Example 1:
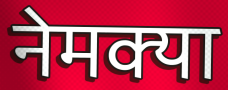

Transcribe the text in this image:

नेमक्या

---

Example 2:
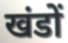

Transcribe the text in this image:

खंडों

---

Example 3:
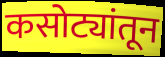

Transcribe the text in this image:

कसोट्यांतून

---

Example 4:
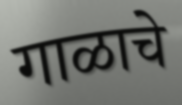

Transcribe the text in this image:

गाळाचे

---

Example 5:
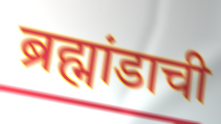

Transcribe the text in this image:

ब्रह्मांडाची